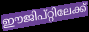
ഈജിപ്റ്റിലേക്ക്